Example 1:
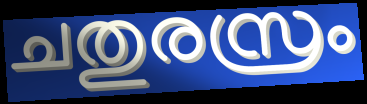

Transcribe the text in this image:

ചതുരസ്രം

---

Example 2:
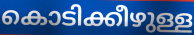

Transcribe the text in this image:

കൊടിക്കീഴുള്ള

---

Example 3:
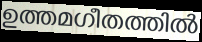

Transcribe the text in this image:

ഉത്തമഗീതത്തിൽ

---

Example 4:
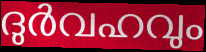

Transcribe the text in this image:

ദുർവഹവും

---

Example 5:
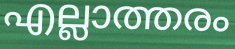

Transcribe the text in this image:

എല്ലാത്തരം